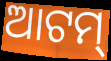
ଆଟମ୍